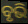
ବୃଭି